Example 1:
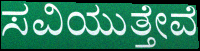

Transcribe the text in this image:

ಸವಿಯುತ್ತೇವೆ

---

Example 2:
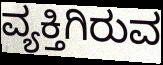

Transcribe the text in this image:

ವ್ಯಕ್ತಿಗಿರುವ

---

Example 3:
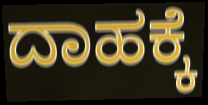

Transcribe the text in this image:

ದಾಹಕ್ಕೆ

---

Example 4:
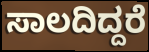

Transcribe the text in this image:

ಸಾಲದಿದ್ದರೆ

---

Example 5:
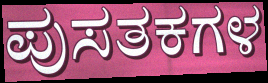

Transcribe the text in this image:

ಪುಸತಕಗಳ